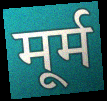
मूर्म